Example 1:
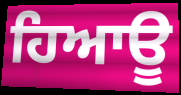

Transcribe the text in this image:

ਹਿਆਊ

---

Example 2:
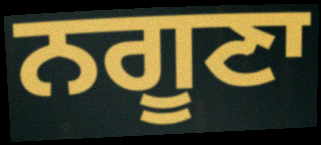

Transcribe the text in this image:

ਨਗੂਣਾ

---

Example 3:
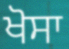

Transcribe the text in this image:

ਖੋਸਾ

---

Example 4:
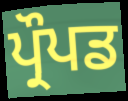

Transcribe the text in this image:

ਪ੍ਰੌਪਡ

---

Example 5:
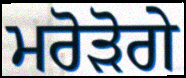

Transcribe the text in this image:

ਮਰੋੜੋਗੇ